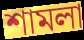
শামলা